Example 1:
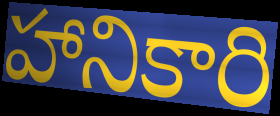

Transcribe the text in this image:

హానికారి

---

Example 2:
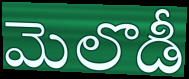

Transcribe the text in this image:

మెలొడీ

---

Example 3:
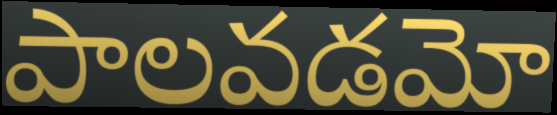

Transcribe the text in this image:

పాలవడమో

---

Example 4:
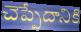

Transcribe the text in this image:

చెప్పేదానికి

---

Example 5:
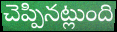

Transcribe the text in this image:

చెప్పినట్లుంది